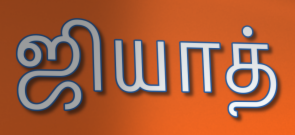
ஜியாத்